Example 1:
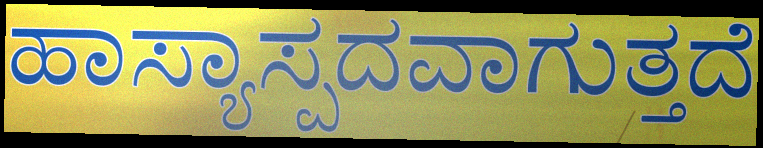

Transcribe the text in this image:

ಹಾಸ್ಯಾಸ್ಪದವಾಗುತ್ತದೆ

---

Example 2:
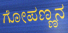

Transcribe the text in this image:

ಗೋಪಣ್ಣನ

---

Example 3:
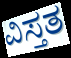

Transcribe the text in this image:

ವಿಸ್ತತ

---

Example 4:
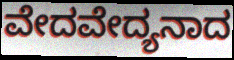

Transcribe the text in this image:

ವೇದವೇದ್ಯನಾದ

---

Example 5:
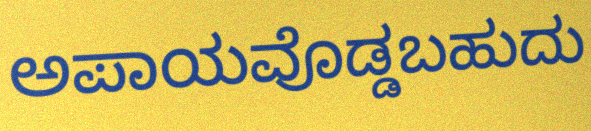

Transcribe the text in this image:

ಅಪಾಯವೊಡ್ಡಬಹುದು